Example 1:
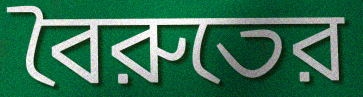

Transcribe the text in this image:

বৈরুতের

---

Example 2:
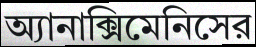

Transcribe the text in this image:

অ্যানাক্সিমেনিসের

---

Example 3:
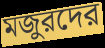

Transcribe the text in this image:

মজুরদের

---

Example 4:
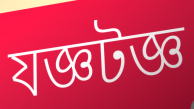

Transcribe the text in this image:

যজ্ঞটজ্ঞ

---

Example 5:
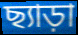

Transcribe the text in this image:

ছ্যাড়া